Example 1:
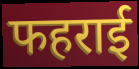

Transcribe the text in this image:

फहराई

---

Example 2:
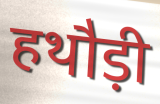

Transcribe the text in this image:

हथौड़ी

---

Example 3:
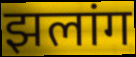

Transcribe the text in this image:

झलांग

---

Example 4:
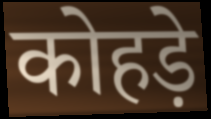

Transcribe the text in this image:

कोहड़े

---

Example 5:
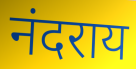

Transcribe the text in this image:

नंदराय